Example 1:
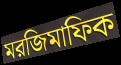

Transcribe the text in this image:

মরজিমাফিক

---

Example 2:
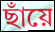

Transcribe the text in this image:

ছাঁয়ে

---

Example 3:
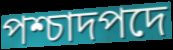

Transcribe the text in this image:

পশ্চাদপদে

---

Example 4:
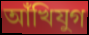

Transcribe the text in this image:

আঁখিযুগ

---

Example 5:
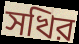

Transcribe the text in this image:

সখির